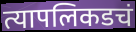
त्यापलिकडचं